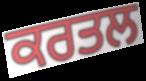
ਕਰਤਲ